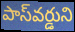
పాస్‌వర్డుని